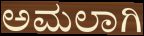
ಅಮಲಾಗಿ